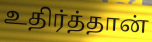
உதிர்த்தான்